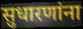
सुधारणांना